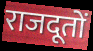
राजदूतों